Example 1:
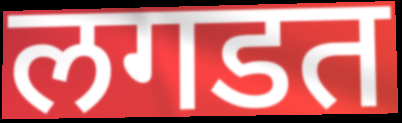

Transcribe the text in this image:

लगडत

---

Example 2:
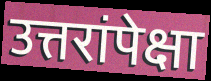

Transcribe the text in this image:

उत्तरांपेक्षा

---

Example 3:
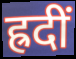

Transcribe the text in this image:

ह्रदीं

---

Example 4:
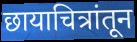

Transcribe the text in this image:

छायाचित्रांतून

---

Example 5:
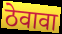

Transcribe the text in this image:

ठेवावा